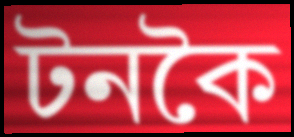
টনকৈ